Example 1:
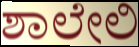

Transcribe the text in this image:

ಶಾಲೇಲಿ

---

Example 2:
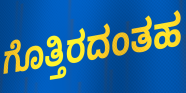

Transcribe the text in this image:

ಗೊತ್ತಿರದಂತಹ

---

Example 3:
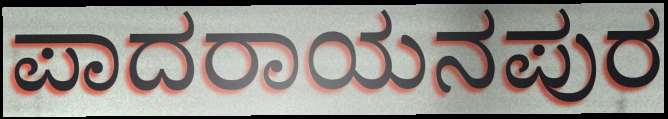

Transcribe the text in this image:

ಪಾದರಾಯನಪುರ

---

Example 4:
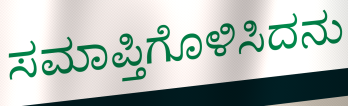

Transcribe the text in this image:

ಸಮಾಪ್ತಿಗೊಳಿಸಿದನು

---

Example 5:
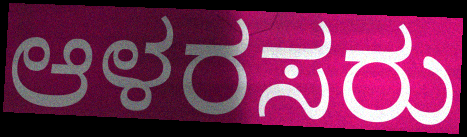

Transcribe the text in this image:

ಆಳರಸರು